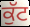
ਕੁੱਟ